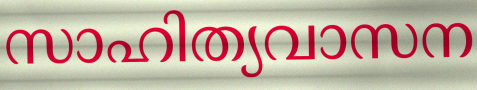
സാഹിത്യവാസന